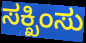
ಸಕ್ಖಿಂಸು